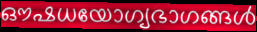
ഔഷധയോഗ്യഭാഗങ്ങൾ